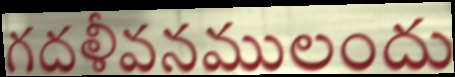
గదళీవనములందు